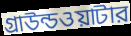
গ্রাউন্ডওয়াটার